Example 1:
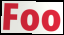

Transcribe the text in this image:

Foo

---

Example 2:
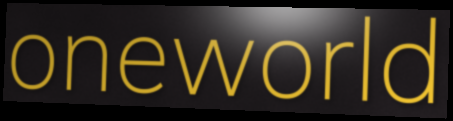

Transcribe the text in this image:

oneworld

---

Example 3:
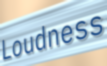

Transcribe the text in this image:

Loudness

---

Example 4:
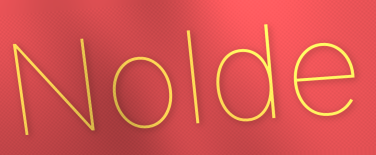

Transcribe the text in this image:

Nolde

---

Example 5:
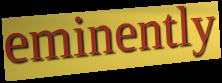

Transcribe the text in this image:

eminently